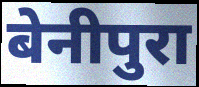
बेनीपुरा